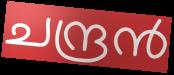
ചന്ദ്രൻ